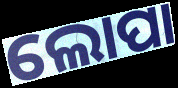
ଲୋପା